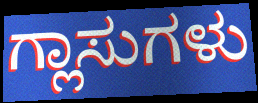
ಗ್ಲಾಸುಗಳು